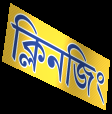
ক্লিনজিং